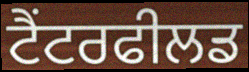
ਟੈਂਟਰਫੀਲਡ